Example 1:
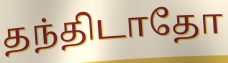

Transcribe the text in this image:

தந்திடாதோ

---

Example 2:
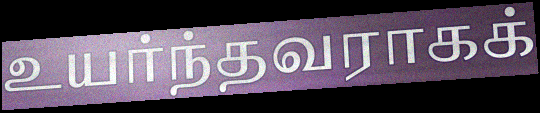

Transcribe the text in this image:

உயர்ந்தவராகக்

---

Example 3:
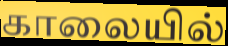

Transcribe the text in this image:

காலையில்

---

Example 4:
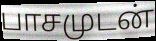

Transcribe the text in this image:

பாசமுடன்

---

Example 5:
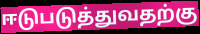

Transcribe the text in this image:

ஈடுபடுத்துவதற்கு